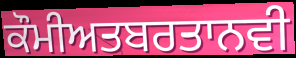
ਕੌਮੀਅਤਬਰਤਾਨਵੀ